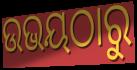
ଉଭୟଠାରୁ